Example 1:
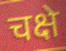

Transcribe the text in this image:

चक्षे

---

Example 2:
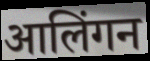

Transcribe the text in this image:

आलिंगन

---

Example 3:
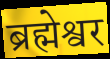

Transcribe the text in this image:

ब्रह्मेश्वर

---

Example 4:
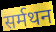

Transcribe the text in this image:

सर्मथन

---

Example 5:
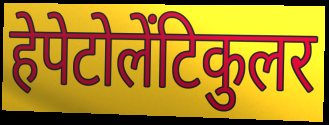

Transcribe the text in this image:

हेपेटोलेंटिकुलर